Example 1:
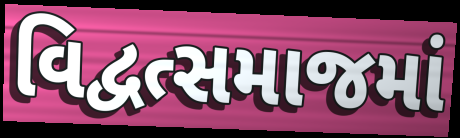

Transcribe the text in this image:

વિદ્વત્સમાજમાં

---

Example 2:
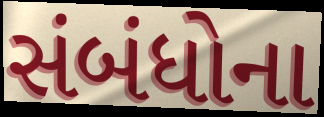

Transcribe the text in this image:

સંબંધોના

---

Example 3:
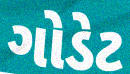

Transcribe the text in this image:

ગોડેટ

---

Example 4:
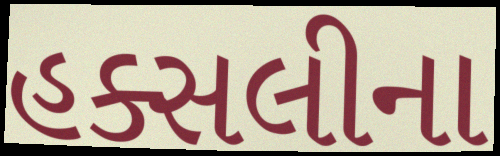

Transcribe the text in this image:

હક્સલીના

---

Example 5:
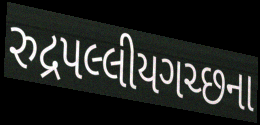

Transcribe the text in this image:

રુદ્રપલ્લીયગચ્છના